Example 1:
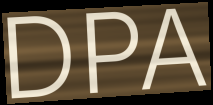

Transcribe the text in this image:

DPA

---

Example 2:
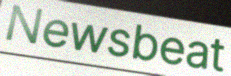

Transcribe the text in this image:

Newsbeat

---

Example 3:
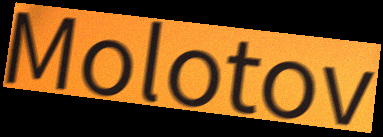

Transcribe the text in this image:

Molotov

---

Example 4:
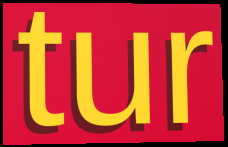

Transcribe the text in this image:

tur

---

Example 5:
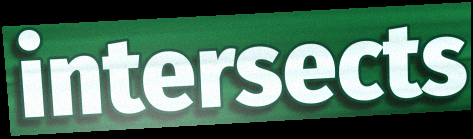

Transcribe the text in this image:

intersects